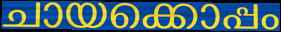
ചായക്കൊപ്പം